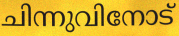
ചിന്നുവിനോട്